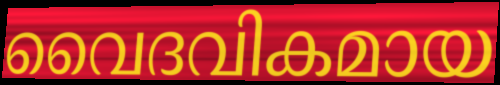
വൈദവികമായ